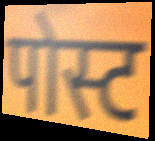
पोस्ट